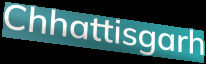
Chhattisgarh